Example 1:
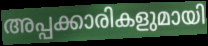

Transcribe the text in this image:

അപ്പക്കാരികളുമായി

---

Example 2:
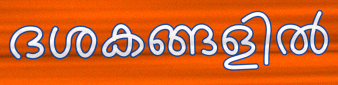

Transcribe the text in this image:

ദശകങ്ങളിൽ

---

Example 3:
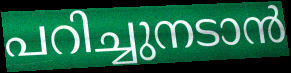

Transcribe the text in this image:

പറിച്ചുനടാൻ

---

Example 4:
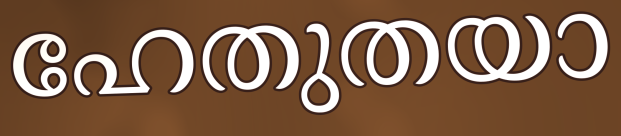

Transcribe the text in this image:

ഹേതുതയാ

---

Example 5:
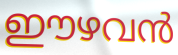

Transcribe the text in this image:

ഈഴവൻ